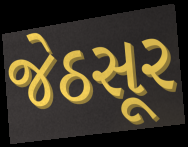
જેઠસૂર